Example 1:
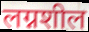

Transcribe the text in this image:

लग्नशील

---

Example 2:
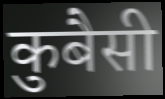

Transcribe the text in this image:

कुबैसी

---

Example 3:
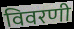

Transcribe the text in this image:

विवरणी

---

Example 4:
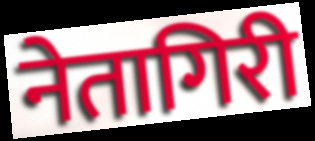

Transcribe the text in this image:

नेतागिरी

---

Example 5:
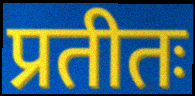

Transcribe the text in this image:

प्रतीतः